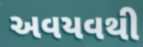
અવયવથી